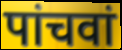
पांचवां